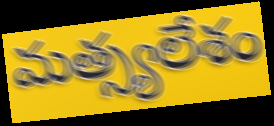
మత్స్యలేశం